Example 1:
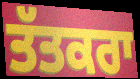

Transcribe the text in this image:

ਤੱਤਕਰਾ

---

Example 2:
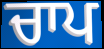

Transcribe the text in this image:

ਚਾਪ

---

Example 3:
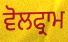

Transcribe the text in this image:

ਵੋਲਫ੍ਰਾਮ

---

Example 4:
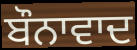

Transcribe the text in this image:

ਬੌਨਾਵਾਦ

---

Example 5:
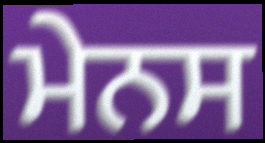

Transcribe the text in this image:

ਮੇਨਸ